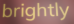
brightly